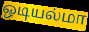
ஒடியல்மா